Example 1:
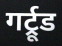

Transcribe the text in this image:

गर्ट्रूड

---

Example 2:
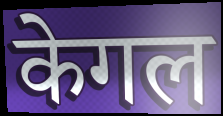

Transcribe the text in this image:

केगल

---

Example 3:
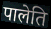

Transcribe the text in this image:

पालेति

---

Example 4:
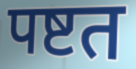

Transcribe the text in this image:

पष्टत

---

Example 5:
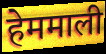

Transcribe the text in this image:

हेममाली